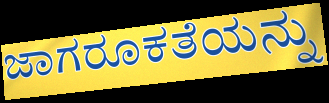
ಜಾಗರೂಕತೆಯನ್ನು